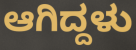
ಆಗಿದ್ದಳು